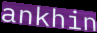
ankhin